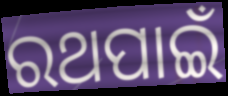
ରଥପାଇଁ